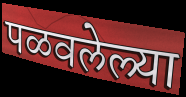
पळवलेल्या